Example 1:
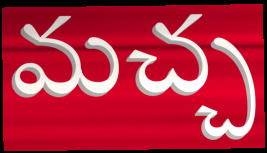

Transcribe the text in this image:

మచ్చ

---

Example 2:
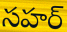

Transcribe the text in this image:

సహర్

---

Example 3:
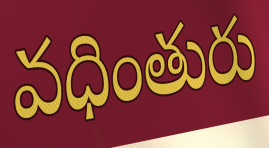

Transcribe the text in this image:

వధింతురు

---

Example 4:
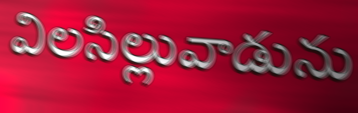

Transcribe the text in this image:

విలసిల్లువాడును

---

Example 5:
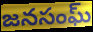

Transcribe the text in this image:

జనసంఘ్